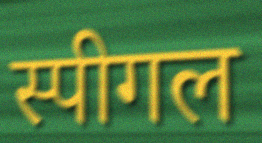
स्पीगल